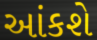
આંકશે